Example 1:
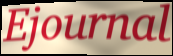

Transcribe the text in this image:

Ejournal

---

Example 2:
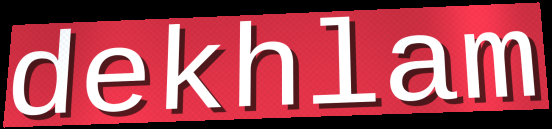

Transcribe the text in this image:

dekhlam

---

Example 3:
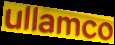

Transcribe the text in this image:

ullamco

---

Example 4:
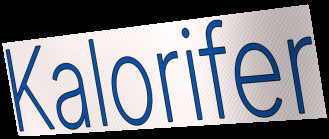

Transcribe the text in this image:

Kalorifer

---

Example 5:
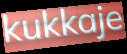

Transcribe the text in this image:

kukkaje